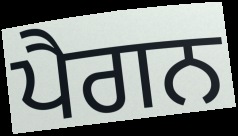
ਪੈਗਨ